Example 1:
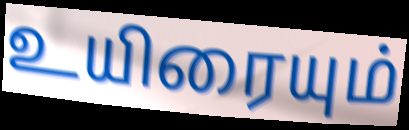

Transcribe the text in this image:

உயிரையும்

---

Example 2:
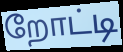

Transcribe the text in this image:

றோட்டி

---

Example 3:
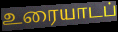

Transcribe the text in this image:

உரையாடப்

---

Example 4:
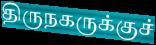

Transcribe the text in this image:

திருநகருக்குச்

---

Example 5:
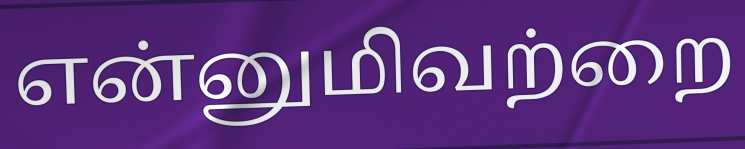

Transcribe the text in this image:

என்னுமிவற்றை